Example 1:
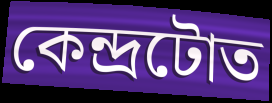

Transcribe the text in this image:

কেন্দ্ৰটোত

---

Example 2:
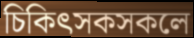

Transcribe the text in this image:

চিকিৎসকসকলে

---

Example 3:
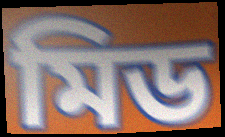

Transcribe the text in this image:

মিড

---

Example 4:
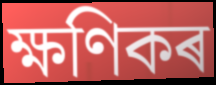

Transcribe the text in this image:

ক্ষণিকৰ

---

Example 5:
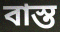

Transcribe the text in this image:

বাস্ত